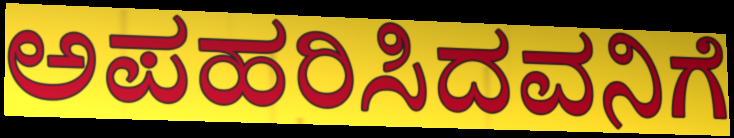
ಅಪಹರಿಸಿದವನಿಗೆ